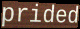
prided